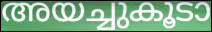
അയച്ചുകൂടാ